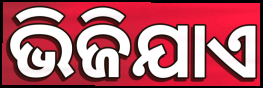
ଭିଜିଯାଏ